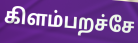
கிளம்பறச்சே